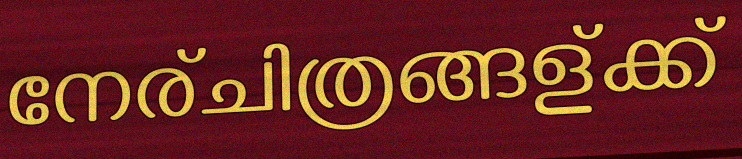
നേര്ചിത്രങ്ങള്ക്ക്